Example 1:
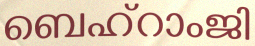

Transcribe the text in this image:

ബെഹ്റാംജി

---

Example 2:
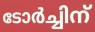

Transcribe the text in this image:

ടോർച്ചിന്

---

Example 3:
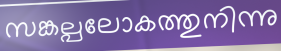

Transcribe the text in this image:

സങ്കല്പലോകത്തുനിന്നു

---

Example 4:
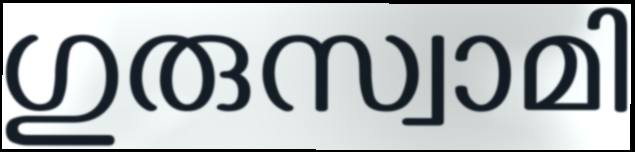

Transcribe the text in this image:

ഗുരുസ്വാമി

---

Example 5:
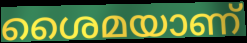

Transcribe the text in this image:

ശൈമയാണ്